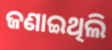
ଜଣାଇଥିଲି